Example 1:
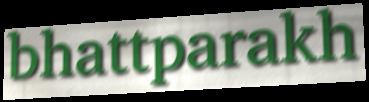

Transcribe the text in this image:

bhattparakh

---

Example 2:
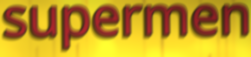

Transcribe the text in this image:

supermen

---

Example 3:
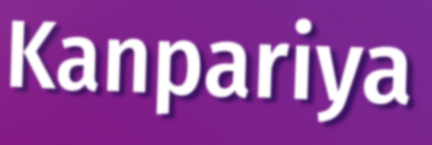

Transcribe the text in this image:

Kanpariya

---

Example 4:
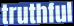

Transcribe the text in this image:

truthful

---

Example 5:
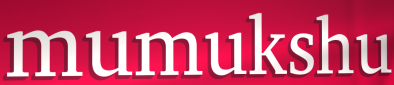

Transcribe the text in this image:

mumukshu